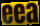
eea